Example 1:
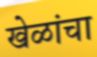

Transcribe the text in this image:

खेळांचा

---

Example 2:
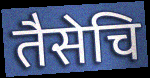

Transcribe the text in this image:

तैसेचि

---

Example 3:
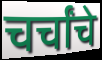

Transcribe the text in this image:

चर्चांचे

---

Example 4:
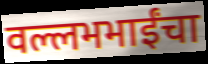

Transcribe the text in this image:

वल्लभभाईंचा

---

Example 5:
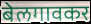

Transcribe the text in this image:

बेलगावकर